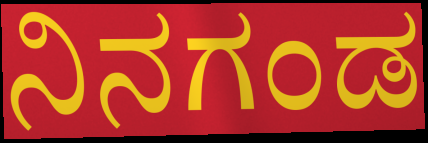
ನಿನಗಂಡ